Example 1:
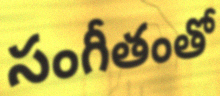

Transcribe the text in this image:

సంగీతంతో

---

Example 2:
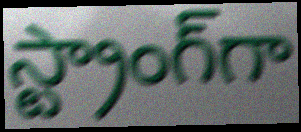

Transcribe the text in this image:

స్ట్రాంగ్‌గా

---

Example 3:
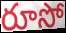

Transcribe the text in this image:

రూసో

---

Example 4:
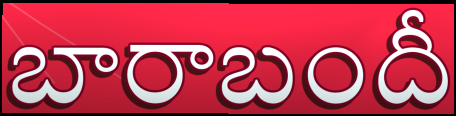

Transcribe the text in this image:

బారాబందీ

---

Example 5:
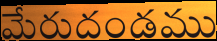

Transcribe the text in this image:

మేరుదండము